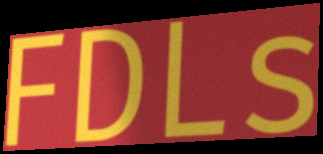
FDLs